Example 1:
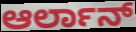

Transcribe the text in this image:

ಆರ್ಲಾನ್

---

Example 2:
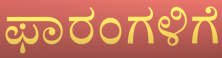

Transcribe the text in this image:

ಫಾರಂಗಳಿಗೆ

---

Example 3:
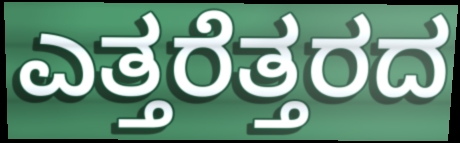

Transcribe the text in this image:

ಎತ್ತರೆತ್ತರದ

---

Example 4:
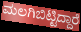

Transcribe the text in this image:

ಮಲಗಿಬಿಟ್ಟಿದ್ದಾರೆ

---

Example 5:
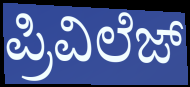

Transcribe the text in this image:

ಪ್ರಿವಿಲೆಜ್